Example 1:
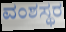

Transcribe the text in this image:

ವಂಶಸ್ಥರ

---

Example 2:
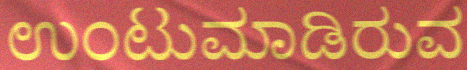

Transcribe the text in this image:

ಉಂಟುಮಾಡಿರುವ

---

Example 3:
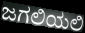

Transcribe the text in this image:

ಜಗಲಿಯಲಿ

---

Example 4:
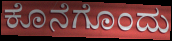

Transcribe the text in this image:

ಕೊನೆಗೊಂದು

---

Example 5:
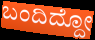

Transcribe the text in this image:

ಬಂದಿದ್ದೋ